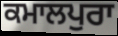
ਕਮਾਲਪੁਰਾ